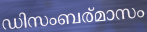
ഡിസംബര്മാസം